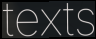
texts